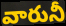
వారునీ